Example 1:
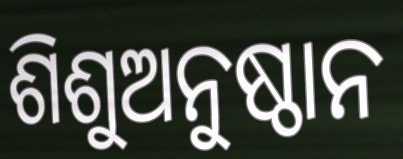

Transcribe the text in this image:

ଶିଶୁଅନୁଷ୍ଠାନ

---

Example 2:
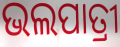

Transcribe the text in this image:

ଭଲପାତ୍ରୀ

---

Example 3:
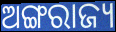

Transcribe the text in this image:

ଅଙ୍ଗରାଜ୍ୟ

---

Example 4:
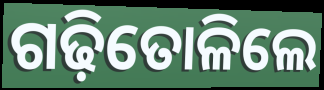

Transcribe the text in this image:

ଗଢ଼ିତୋଳିଲେ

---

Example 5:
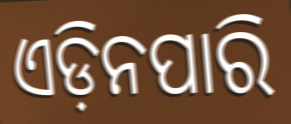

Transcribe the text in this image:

ଏଡ଼ିନପାରି